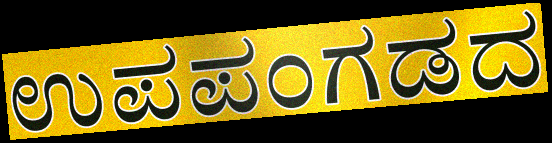
ಉಪಪಂಗಡದ